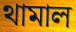
থামাল